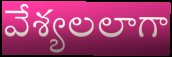
వేశ్యలలాగా